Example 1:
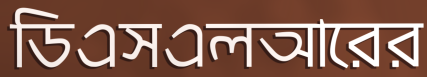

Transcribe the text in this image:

ডিএসএলআরের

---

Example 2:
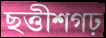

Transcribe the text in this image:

ছত্তীশগঢ়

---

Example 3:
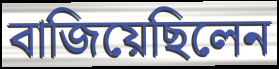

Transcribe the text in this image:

বাজিয়েছিলেন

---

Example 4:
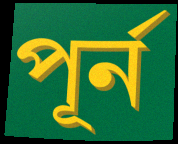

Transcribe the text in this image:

পূর্ন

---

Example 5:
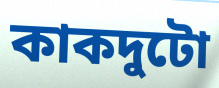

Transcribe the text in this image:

কাকদুটো